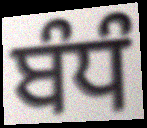
ਬੰਧੰ